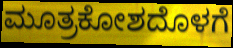
ಮೂತ್ರಕೋಶದೊಳಗೆ